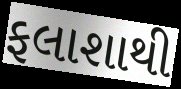
ફલાશાથી